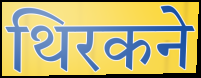
थिरकने